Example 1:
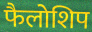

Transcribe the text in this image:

फैलोशिप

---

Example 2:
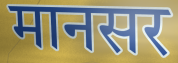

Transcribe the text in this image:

मानसर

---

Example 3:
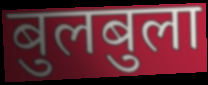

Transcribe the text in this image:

बुलबुला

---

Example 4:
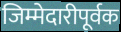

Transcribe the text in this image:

जिम्मेदारीपूर्वक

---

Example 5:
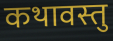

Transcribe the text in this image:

कथावस्तु